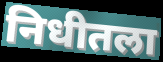
निधीतला